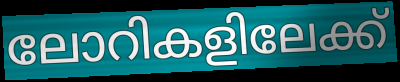
ലോറികളിലേക്ക്